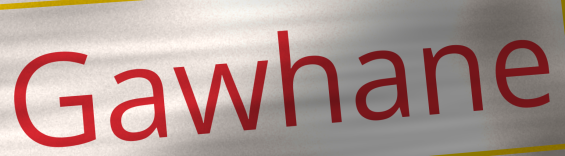
Gawhane